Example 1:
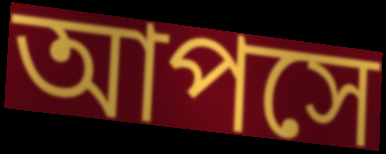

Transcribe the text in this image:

আপসে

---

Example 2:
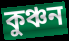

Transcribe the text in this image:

কুঞ্চন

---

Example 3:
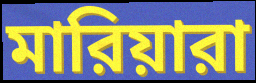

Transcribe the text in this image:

মারিয়ারা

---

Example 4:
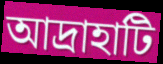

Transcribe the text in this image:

আদ্রাহাটি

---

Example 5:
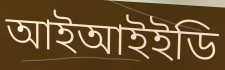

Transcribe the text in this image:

আইআইইডি